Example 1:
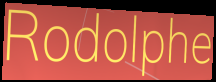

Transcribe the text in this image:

Rodolphe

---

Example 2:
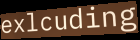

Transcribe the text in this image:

exlcuding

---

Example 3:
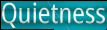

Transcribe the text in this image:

Quietness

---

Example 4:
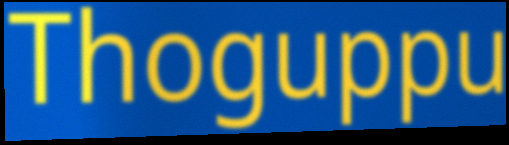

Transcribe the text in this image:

Thoguppu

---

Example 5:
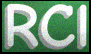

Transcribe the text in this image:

RCl